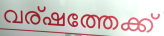
വര്ഷത്തേക്ക്